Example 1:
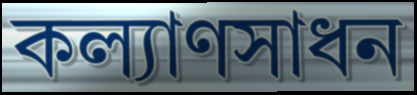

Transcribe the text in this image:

কল্যাণসাধন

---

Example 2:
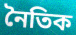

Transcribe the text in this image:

নৈতিক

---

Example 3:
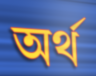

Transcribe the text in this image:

অৰ্থ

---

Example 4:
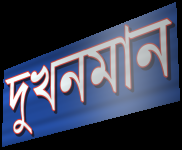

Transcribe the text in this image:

দুখনমান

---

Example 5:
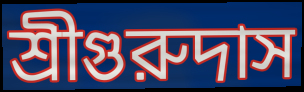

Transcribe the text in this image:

শ্ৰীগুৰুদাস